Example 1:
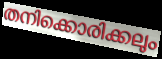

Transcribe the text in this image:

തനിക്കൊരിക്കലും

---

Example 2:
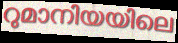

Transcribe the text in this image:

റുമാനിയയിലെ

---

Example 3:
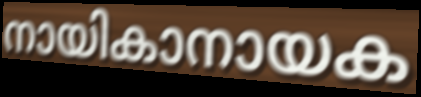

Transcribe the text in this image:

നായികാനായക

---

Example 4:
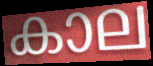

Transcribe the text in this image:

കാല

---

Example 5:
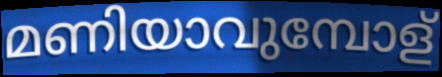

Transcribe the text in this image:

മണിയാവുമ്പോള്